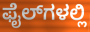
ಫೈಲ್‌ಗಳಲ್ಲಿ